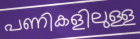
പണികളിലുള്ള